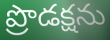
ప్రొడక్షను